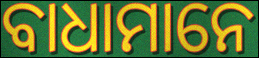
ବାଧାମାନେ